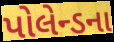
પોલેન્ડના